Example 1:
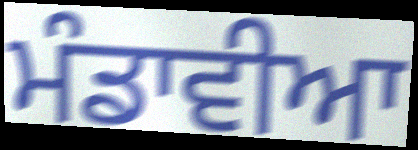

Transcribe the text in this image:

ਮੰਡਾਵੀਆ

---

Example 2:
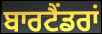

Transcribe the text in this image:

ਬਾਰਟੈਂਡਰਾਂ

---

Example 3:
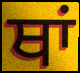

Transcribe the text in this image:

ਥਾਂ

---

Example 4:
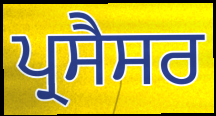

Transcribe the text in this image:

ਪ੍ਰਸੈਸਰ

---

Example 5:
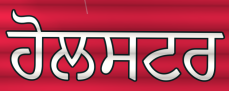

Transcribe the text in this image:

ਹੋਲਸਟਰ